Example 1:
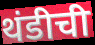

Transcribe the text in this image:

थंडीची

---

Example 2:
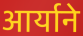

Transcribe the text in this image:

आर्याने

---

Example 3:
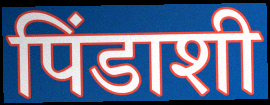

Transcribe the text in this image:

पिंडाशी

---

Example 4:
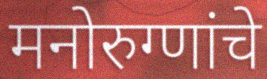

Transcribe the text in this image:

मनोरुग्णांचे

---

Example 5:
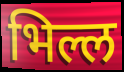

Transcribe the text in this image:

भिल्ल